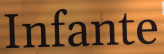
Infante